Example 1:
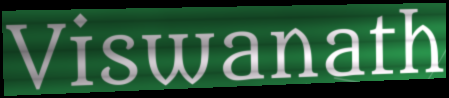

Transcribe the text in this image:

Viswanath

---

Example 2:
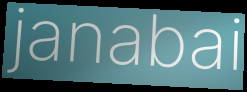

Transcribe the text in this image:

janabai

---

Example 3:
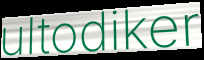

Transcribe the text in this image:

ultodiker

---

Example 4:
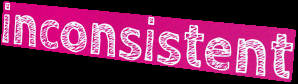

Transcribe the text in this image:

inconsistent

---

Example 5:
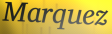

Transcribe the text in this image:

Marquez